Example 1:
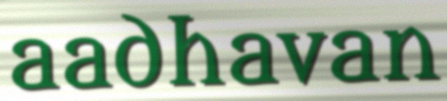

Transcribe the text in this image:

aadhavan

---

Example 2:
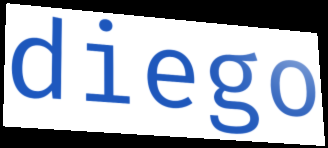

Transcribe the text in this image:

diego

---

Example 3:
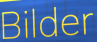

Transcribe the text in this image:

Bilder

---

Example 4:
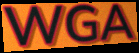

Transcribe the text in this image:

WGA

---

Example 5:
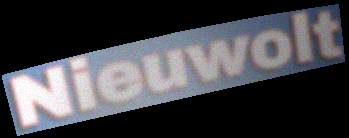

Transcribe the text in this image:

Nieuwolt